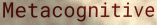
Metacognitive